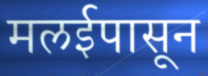
मलईपासून